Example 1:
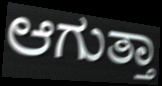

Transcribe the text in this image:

ಆಗುತ್ತಾ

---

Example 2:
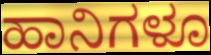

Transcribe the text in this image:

ಹಾನಿಗಳೂ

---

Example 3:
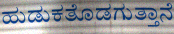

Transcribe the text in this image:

ಹುಡುಕತೊಡಗುತ್ತಾನೆ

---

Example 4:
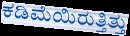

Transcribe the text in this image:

ಕಡಿಮೆಯಿರುತ್ತಿತ್ತು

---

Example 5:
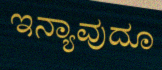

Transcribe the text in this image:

ಇನ್ಯಾವುದೂ